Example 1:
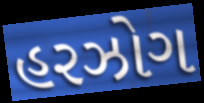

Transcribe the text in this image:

હરઝોગ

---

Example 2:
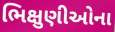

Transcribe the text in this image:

ભિક્ષુણીઓના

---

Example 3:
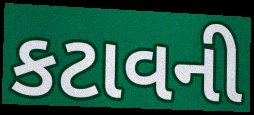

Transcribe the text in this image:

કટાવની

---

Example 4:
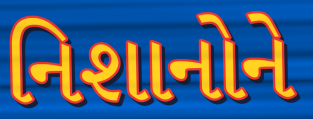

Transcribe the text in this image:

નિશાનોને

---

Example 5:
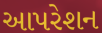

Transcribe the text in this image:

આપરેશન